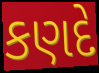
કણદે